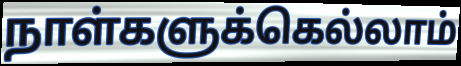
நாள்களுக்கெல்லாம்